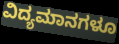
ವಿದ್ಯಮಾನಗಳೂ